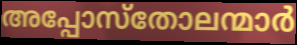
അപ്പോസ്തോലന്മാർ